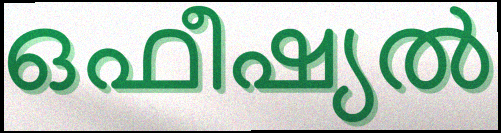
ഒഫീഷ്യൽ